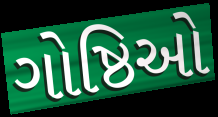
ગોષ્ઠિઓ